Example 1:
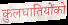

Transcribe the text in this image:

कुलघातियोंको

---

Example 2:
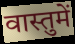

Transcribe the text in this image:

वास्तुमें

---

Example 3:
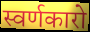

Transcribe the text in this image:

स्वर्णकारो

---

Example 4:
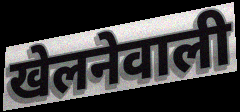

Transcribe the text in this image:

खेलनेवाली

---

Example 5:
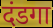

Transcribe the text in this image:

दंडगा